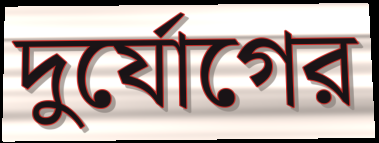
দুর্যোগের